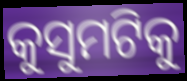
କୁସୁମଟିକୁ